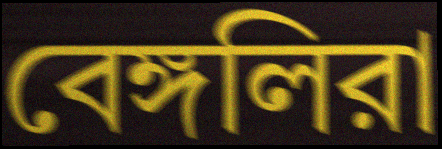
বেঙ্গলিরা